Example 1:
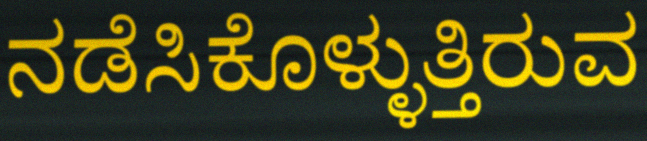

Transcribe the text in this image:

ನಡೆಸಿಕೊಳ್ಳುತ್ತಿರುವ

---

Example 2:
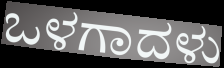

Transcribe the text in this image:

ಒಳಗಾದಳು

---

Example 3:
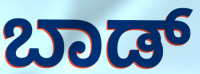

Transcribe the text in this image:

ಬಾಡ್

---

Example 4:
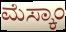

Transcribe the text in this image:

ಮೆಸ್ಕಾಂ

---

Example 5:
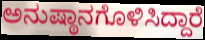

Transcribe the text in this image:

ಅನುಷ್ಠಾನಗೊಳಿಸಿದ್ದಾರೆ